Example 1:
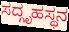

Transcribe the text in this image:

ಸದ್ಗೃಹಸ್ಥನ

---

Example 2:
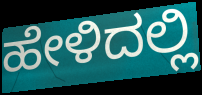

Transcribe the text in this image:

ಹೇಳಿದಲ್ಲಿ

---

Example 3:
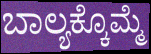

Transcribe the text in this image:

ಬಾಲ್ಯಕ್ಕೊಮ್ಮೆ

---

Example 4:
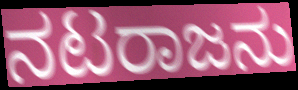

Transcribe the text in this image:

ನಟರಾಜನು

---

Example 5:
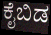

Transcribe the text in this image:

ಕೈಬಿಡ